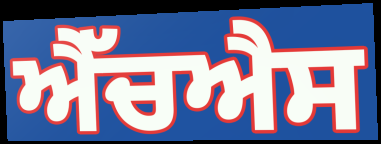
ਐੱਚਐਸ